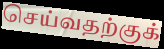
செய்வதற்குக்